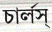
চার্লস্